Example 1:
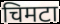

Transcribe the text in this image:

चिमटा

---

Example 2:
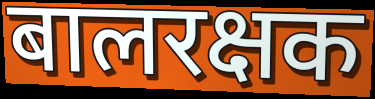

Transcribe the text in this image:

बालरक्षक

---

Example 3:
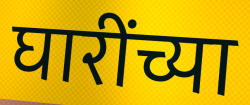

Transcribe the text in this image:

घारींच्या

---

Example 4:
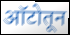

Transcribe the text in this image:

ऑटोतून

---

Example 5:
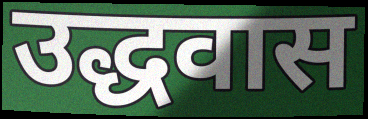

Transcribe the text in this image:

उद्धवास